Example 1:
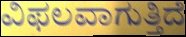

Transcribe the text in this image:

ವಿಫಲವಾಗುತ್ತಿದೆ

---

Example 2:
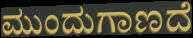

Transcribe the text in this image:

ಮುಂದುಗಾಣದೆ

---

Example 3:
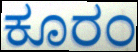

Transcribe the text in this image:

ಕೂರಂ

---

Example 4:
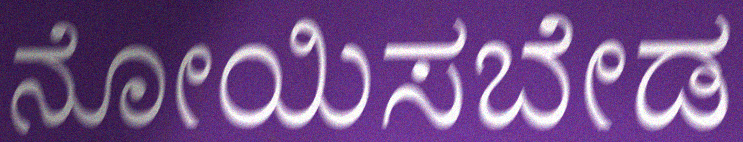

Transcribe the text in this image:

ನೋಯಿಸಬೇಡ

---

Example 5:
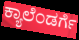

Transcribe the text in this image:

ಕ್ಯಾಲೆಂಡರ್ಗೆ